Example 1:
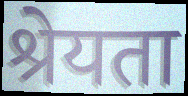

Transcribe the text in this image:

श्रेयता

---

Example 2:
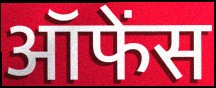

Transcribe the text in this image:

ऑफेंस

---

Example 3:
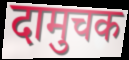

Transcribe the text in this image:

दामुचक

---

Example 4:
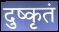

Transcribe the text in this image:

दुष्कृतं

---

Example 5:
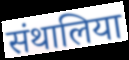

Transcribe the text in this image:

संथालिया